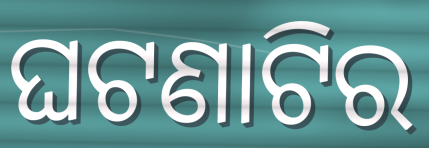
ଘଟଣାଟିର